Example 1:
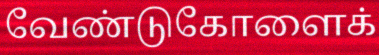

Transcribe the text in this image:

வேண்டுகோளைக்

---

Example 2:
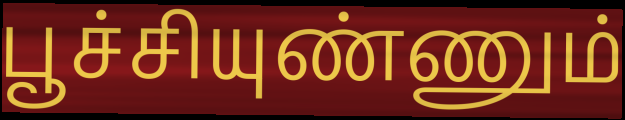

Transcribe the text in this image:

பூச்சியுண்ணும்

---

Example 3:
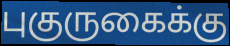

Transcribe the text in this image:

புகுருகைக்கு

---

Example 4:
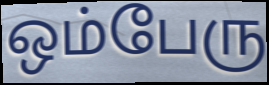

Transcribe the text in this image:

ஒம்பேரு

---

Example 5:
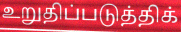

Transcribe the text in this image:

உறுதிப்படுத்திக்